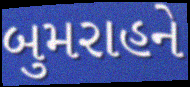
બુમરાહને